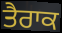
ਤੈਰਾਕ